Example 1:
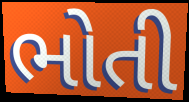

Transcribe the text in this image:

ભોતી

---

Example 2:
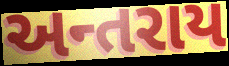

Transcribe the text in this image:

અન્તરાય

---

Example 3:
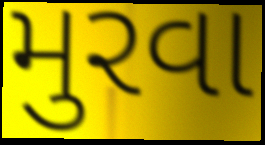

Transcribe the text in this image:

મુરવા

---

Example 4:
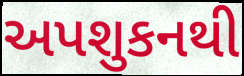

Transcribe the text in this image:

અપશુકનથી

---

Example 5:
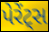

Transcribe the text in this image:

પેરેંટ્સ